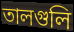
তালগুলি